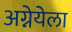
अग्नेयेला